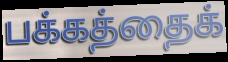
பக்கத்தைக்